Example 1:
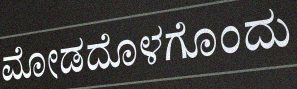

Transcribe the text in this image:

ಮೋಡದೊಳಗೊಂದು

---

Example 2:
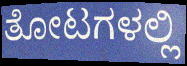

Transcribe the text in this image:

ತೋಟಗಳಲ್ಲಿ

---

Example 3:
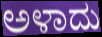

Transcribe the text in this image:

ಅಳಾದು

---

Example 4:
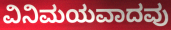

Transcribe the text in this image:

ವಿನಿಮಯವಾದವು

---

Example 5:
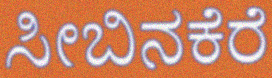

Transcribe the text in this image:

ಸೀಬಿನಕೆರೆ